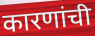
कारणांची